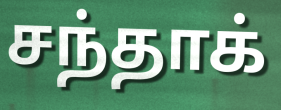
சந்தாக்